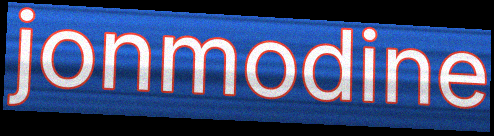
jonmodine